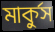
মার্কুস